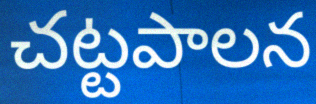
చట్టపాలన